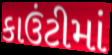
કાઉંટીમાં